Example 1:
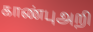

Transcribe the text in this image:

காண்புஅறி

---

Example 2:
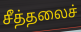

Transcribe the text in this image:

சீத்தலைச்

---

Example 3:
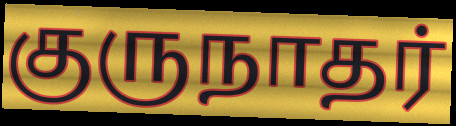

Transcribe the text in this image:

குருநாதர்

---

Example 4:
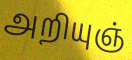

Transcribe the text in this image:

அறியுஞ்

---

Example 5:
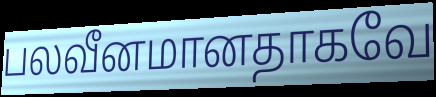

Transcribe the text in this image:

பலவீனமானதாகவே